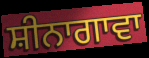
ਸ਼ੀਨਾਗਾਵਾ